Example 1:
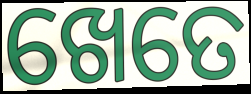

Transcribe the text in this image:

ଖେତେ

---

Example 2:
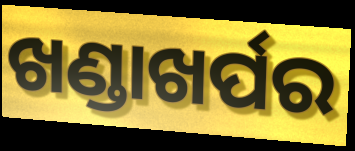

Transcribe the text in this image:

ଖଣ୍ଡାଖର୍ପର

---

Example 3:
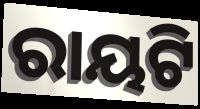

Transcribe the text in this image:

ରାୟଟି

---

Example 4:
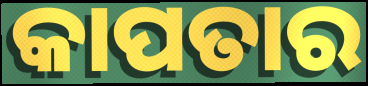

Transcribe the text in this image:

କାପତାର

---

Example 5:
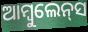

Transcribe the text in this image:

ଆମ୍ବୁଲେନ୍‍ସ